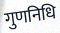
गुणनिधि